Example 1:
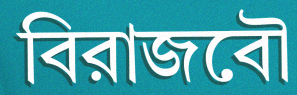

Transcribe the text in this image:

বিরাজবৌ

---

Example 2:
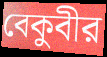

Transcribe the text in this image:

বেকুবীর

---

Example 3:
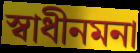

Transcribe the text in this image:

স্বাধীনমনা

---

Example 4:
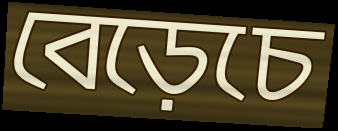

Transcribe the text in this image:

বেড়েচে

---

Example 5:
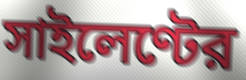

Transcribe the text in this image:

সাইলেণ্টের